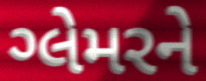
ગ્લેમરને